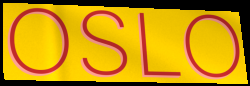
OSLO